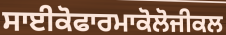
ਸਾਈਕੋਫਾਰਮਾਕੋਲੋਜੀਕਲ